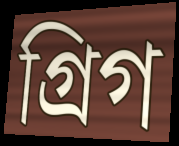
গ্রিগ